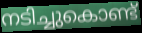
നടിച്ചുകൊണ്ട്